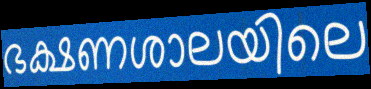
ഭക്ഷണശാലയിലെ